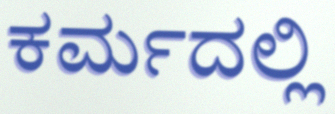
ಕರ್ಮದಲ್ಲಿ